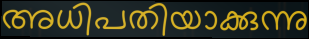
അധിപതിയാക്കുന്നു